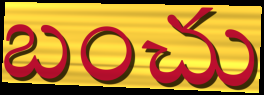
బంచు